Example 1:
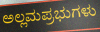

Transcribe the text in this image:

ಅಲ್ಲಮಪ್ರಭುಗಳು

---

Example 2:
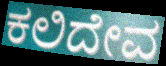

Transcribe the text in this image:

ಕಲಿದೇವ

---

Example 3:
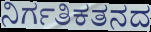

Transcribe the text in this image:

ನಿರ್ಗತಿಕತನದ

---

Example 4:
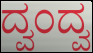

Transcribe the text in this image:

ದ್ವಂದ್ವ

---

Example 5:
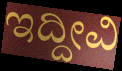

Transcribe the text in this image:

ಇದ್ದೀವಿ